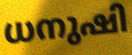
ധനുഷി